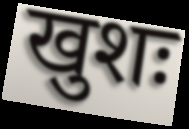
खुशः